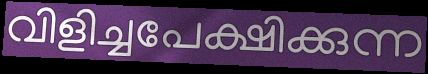
വിളിച്ചപേക്ഷിക്കുന്ന